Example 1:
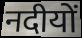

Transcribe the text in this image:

नदीयों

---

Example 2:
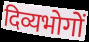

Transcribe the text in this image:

दिव्यभोगों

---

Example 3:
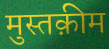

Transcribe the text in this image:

मुस्तक़ीम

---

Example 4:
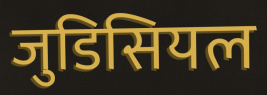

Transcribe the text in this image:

जुडिसियल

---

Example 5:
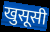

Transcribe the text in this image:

खुसूसी